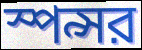
স্পন্সর